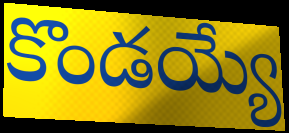
కొండయ్యే